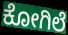
ಕೋಗಿಲೆ